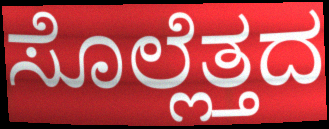
ಸೊಲ್ಲೆತ್ತದ